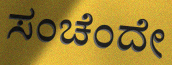
ಸಂಚೆಂದೇ